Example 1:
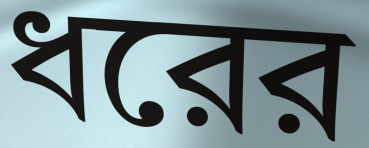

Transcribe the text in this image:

ধরের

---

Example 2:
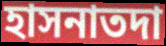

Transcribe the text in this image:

হাসনাতদা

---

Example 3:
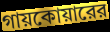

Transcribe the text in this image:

গায়কোয়ারের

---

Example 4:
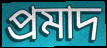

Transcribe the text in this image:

প্রমাদ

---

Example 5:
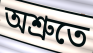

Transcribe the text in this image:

অশ্রুতে